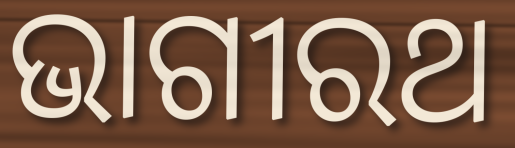
ଭାଗୀରଥ